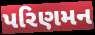
પરિણમન